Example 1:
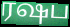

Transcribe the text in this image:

ரஷப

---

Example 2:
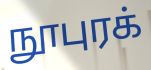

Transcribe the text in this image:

நூபுரக்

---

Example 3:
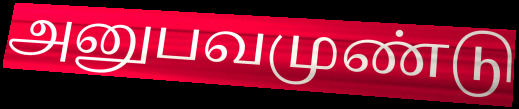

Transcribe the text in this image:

அனுபவமுண்டு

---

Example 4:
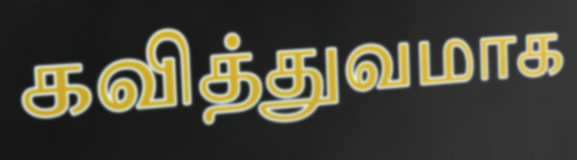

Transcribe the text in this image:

கவித்துவமாக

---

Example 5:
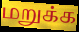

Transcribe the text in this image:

மறுக்க